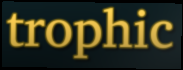
trophic